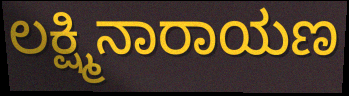
ಲಕ್ಷ್ಮಿನಾರಾಯಣ